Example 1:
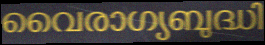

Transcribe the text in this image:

വൈരാഗ്യബുദ്ധി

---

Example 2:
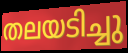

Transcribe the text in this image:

തലയടിച്ചു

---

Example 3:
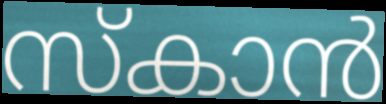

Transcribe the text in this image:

സ്കാൻ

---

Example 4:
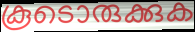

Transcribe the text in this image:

കൂടൊരുക്കുക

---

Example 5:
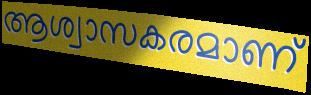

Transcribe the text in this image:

ആശ്വാസകരമാണ്